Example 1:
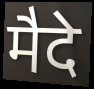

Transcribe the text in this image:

मैदे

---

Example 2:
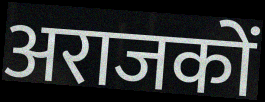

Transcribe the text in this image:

अराजकों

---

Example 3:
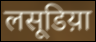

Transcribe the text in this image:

लसूडिय़ा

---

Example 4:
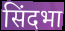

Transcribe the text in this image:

सिंदभा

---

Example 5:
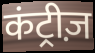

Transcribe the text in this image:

कंट्रीज़